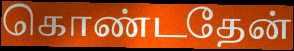
கொண்டதேன்